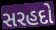
સરહદો